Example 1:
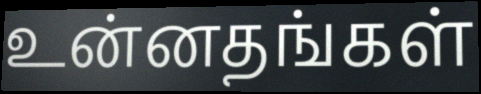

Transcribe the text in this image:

உன்னதங்கள்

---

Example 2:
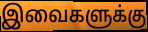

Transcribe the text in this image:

இவைகளுக்கு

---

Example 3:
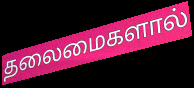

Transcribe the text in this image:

தலைமைகளால்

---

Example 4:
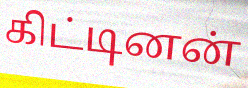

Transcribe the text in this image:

கிட்டினன்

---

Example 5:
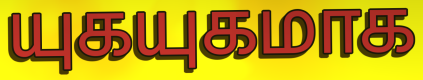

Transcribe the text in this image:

யுகயுகமாக